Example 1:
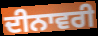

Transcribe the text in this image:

ਦੀਨਾਵਰੀ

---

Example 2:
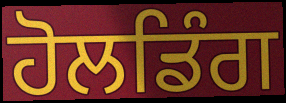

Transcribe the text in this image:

ਹੋਲਡਿੰਗ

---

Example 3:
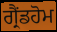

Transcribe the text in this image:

ਗ੍ਰੈਂਡਹੋਮ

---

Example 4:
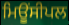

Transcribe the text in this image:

ਮਿਊਂਸੀਪਲ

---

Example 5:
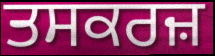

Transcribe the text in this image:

ਤਸਕਰਜ਼